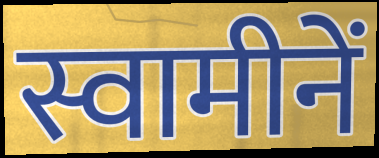
स्वामीनें